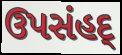
ઉપસંહદ્